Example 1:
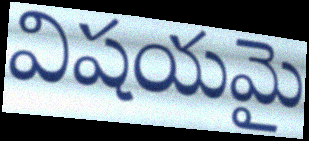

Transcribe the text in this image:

విషయమై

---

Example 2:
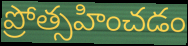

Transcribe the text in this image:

ప్రోత్సహించడం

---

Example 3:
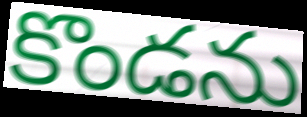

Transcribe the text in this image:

కొండను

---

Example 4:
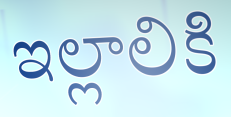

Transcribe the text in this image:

ఇల్లాలికి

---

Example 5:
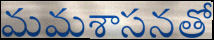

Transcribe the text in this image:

మమశాసనతో